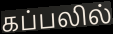
கப்பலில்